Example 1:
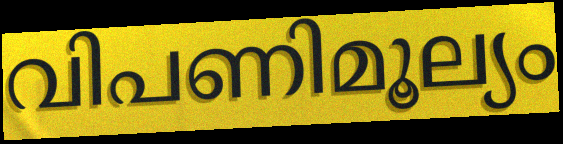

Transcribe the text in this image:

വിപണിമൂല്യം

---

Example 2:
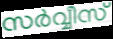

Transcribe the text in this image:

സർവ്വീസ്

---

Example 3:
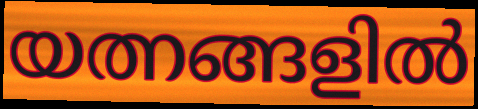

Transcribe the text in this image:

യത്നങ്ങളിൽ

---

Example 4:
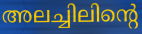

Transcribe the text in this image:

അലച്ചിലിന്റെ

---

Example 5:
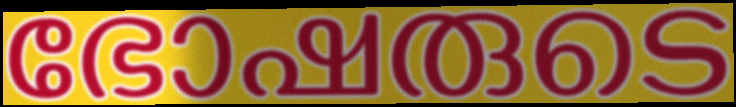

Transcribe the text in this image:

ഭോഷരുടെ